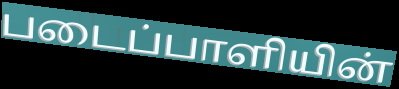
படைப்பாளியின்